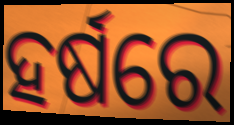
ହର୍ଷରେ